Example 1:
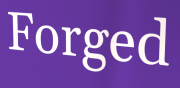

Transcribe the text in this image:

Forged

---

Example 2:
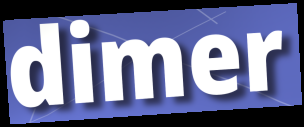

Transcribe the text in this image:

dimer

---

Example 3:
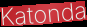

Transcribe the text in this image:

Katonda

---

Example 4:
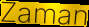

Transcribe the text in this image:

Zaman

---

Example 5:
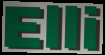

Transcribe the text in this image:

Elli